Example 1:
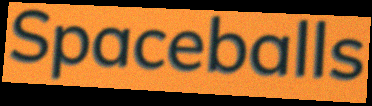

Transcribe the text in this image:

Spaceballs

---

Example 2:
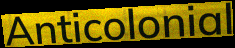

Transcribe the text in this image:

Anticolonial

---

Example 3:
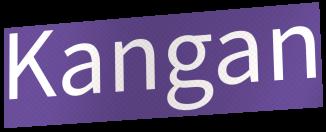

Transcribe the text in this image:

Kangan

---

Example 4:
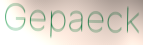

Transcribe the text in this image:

Gepaeck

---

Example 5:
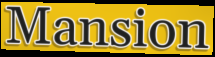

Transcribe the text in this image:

Mansion